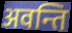
अवन्ति